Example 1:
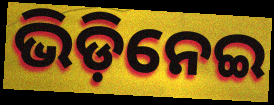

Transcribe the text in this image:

ଭିଡ଼ିନେଇ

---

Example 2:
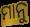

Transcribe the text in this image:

ମାନୁ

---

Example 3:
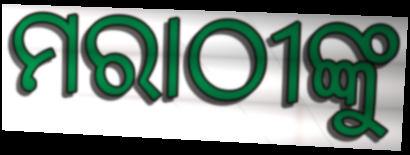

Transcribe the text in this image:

ମରାଠୀଙ୍କୁ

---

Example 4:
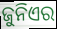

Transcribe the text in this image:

ଜୁନିଏର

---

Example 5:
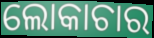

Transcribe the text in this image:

ଲୋକାଚାର